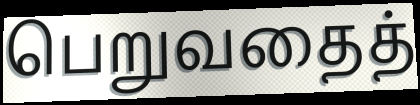
பெறுவதைத்